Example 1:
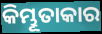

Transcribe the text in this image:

କିମ୍ଭୂତାକାର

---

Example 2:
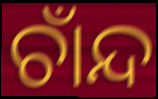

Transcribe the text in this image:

ଚାଁନ୍ଦ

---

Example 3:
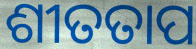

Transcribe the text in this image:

ଶୀତତାପ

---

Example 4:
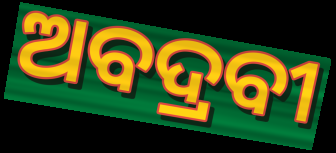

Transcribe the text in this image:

ଅବଦ୍ରବୀ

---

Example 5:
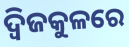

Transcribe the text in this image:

ଦ୍ୱିଜକୁଳରେ